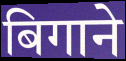
बिगाने